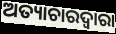
ଅତ୍ୟାଚାରଦ୍ୱାରା